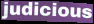
judicious